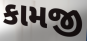
કામજી